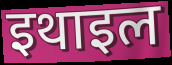
इथाइल